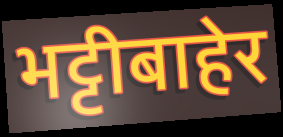
भट्टीबाहेर